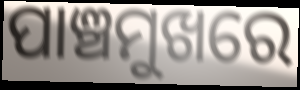
ପାଞ୍ଚମୁଖରେ